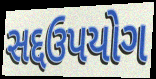
સદ્દઉપયોગ